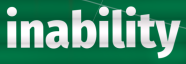
inability